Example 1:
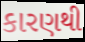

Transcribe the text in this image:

કારણથી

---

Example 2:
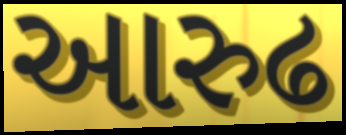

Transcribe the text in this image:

આરુઢ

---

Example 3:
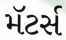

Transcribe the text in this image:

મૅટર્સ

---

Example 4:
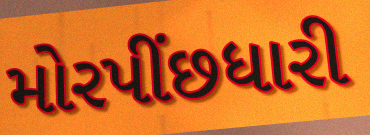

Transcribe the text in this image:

મોરપીંછધારી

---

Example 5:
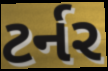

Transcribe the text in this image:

ટર્નર